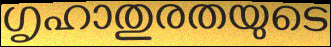
ഗൃഹാതുരതയുടെ